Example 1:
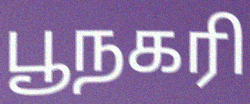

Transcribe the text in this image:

பூநகரி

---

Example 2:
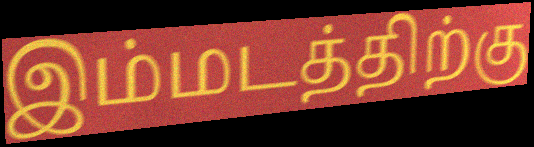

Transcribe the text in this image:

இம்மடத்திற்கு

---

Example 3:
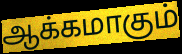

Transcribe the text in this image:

ஆக்கமாகும்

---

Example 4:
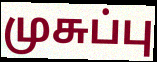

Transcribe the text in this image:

முசுப்பு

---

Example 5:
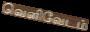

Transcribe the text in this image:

வெளிவேடம்